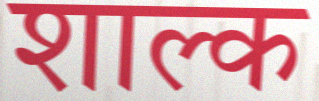
शाल्क